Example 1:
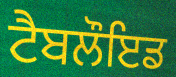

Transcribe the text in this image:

ਟੈਬਲੌਇਡ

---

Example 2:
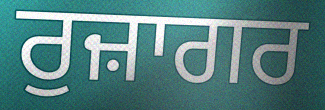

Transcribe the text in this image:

ਰੁਜ਼ਾਗਰ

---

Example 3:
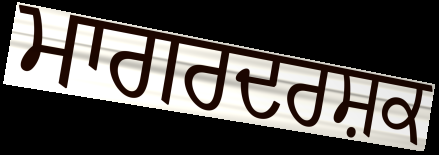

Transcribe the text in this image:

ਮਾਗਰਦਰਸ਼ਕ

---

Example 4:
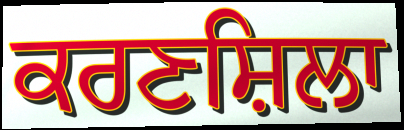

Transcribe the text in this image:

ਕਰਣਸ਼ਿਲਾ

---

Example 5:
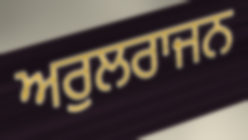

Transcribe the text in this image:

ਅਰੁਲਰਾਜਨ